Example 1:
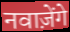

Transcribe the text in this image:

नवाज़ेंगे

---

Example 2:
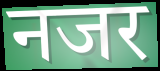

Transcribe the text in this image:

नजर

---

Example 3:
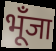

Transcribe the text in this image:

भूँजा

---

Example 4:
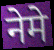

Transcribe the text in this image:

नेमे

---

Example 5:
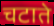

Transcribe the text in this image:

चटाते